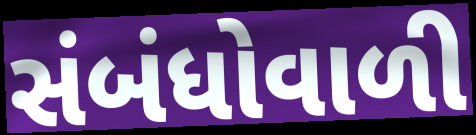
સંબંધોવાળી